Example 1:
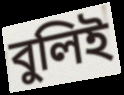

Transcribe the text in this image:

বুলিই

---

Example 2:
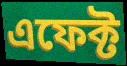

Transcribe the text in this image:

এফেক্ট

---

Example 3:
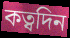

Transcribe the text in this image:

কত্বদিন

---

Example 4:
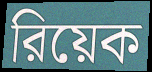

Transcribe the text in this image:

রিয়েক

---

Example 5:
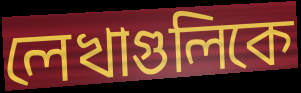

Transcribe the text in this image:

লেখাগুলিকে